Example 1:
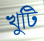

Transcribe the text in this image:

খুটি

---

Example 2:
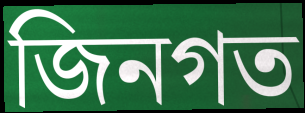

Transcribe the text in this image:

জিনগত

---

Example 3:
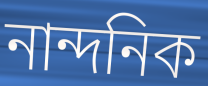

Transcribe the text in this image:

নান্দনিক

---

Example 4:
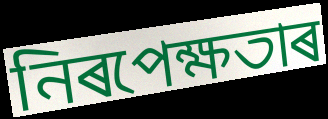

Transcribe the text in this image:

নিৰপেক্ষতাৰ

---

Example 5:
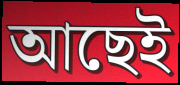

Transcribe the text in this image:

আছেই